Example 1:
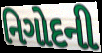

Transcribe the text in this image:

નિગોદની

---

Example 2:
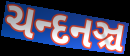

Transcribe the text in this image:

ચન્દનઞ્ચ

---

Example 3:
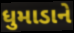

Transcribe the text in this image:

ધુમાડાને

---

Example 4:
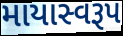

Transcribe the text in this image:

માયાસ્વરૂપ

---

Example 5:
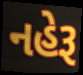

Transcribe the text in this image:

નહેરૂ